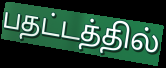
பதட்டத்தில்